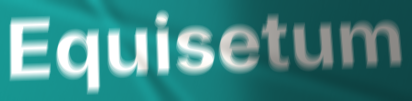
Equisetum